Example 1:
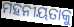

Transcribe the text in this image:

ମହନୀୟତାକୁ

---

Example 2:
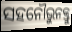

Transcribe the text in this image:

ସହନୌଭୁନକ୍ତୁ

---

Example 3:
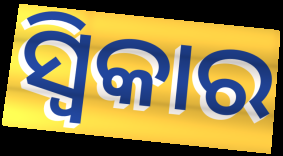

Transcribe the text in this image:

ସ୍ୱିକାର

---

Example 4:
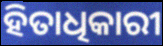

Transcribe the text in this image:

ହିତାଧିକାରୀ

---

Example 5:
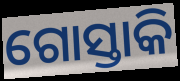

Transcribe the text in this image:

ଗୋସ୍ତାକି